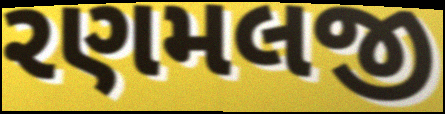
રણમલજી